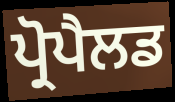
ਪ੍ਰੋਪੈਲਡ